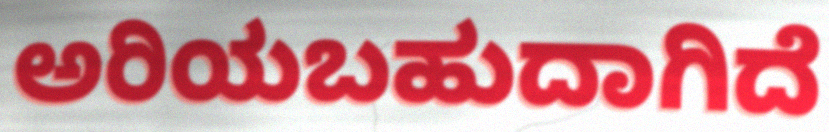
ಅರಿಯಬಹುದಾಗಿದೆ